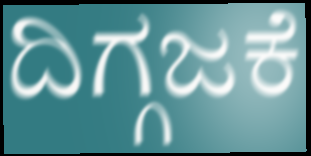
ದಿಗ್ಗಜಕೆ